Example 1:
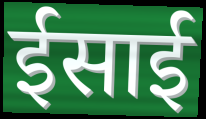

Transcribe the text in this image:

ईसाई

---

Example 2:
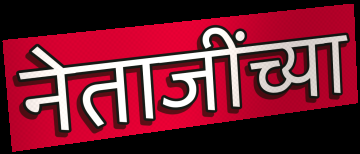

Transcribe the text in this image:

नेताजींच्या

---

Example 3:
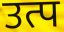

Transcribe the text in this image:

उत्प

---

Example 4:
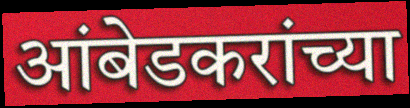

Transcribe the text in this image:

आंबेडकरांच्या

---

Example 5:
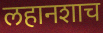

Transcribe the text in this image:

लहानशाच